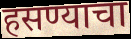
हसण्याचा